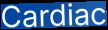
Cardiac